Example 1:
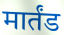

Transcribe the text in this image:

मार्तंड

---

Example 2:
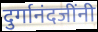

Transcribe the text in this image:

दुर्गानंदजींनी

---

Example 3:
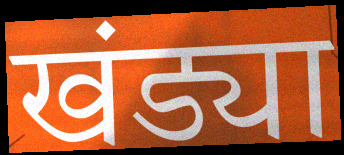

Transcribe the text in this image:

खंड्या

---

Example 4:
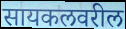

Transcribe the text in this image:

सायकलवरील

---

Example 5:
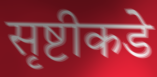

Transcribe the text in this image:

सृष्टीकडे